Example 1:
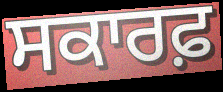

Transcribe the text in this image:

ਸਕਾਰਫ਼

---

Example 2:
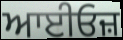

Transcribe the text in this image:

ਆਈਓਜ਼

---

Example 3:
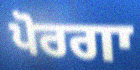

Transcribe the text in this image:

ਪੋਰਗਾ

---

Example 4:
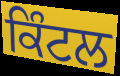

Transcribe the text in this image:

ਕਿੰਟਲ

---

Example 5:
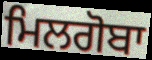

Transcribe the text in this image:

ਮਿਲਗੋਬਾ